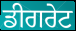
ਡੀਗਰੇਟ